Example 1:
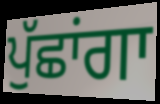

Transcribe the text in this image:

ਪੁੱਛਾਂਗਾ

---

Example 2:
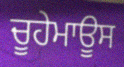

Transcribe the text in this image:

ਚੂਹੇਮਾਊਸ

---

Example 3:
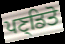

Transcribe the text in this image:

ਪਣ੍ਡਿਤੋ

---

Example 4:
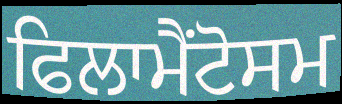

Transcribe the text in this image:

ਫਿਲਾਮੈਂਟੋਸਮ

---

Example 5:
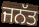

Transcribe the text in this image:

ਜਨੱਤ